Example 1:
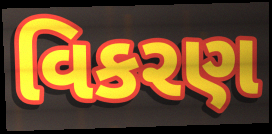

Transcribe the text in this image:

વિકરણ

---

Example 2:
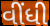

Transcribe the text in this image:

વીંધી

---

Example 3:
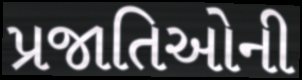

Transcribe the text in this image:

પ્રજાતિઓની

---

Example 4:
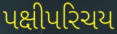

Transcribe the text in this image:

પક્ષીપરિચય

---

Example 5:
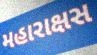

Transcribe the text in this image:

મહારાક્ષસ